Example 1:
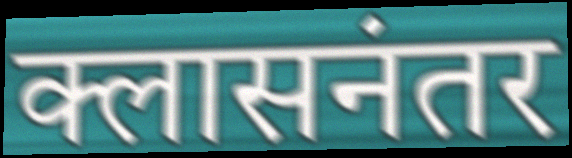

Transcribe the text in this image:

क्लासनंतर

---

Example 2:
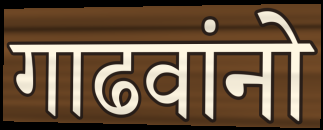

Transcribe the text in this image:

गाढवांनो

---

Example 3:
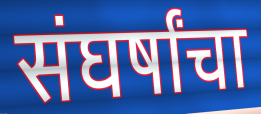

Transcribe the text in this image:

संघर्षांचा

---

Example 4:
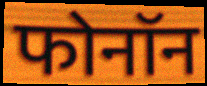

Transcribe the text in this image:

फोनॉन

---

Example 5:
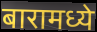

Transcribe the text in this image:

बारामध्ये